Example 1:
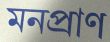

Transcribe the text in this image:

মনপ্রাণ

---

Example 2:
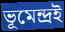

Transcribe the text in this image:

ভূমেন্দ্রই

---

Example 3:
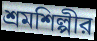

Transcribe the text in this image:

শ্রমশিল্পীর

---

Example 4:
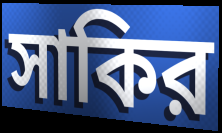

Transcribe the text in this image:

সাকির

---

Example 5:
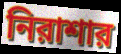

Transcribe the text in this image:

নিরাশার